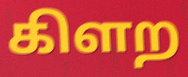
கிளற